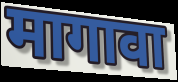
मागावा